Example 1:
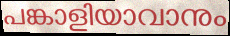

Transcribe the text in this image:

പങ്കാളിയാവാനും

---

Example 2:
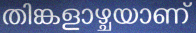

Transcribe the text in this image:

തിങ്കളാഴ്ചയാണ്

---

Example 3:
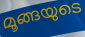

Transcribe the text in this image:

മൂങ്ങയുടെ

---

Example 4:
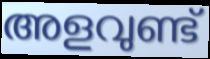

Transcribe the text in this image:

അളവുണ്ട്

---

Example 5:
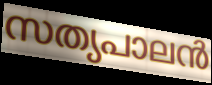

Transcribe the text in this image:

സത്യപാലൻ